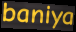
baniya